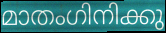
മാതംഗിനിക്കു